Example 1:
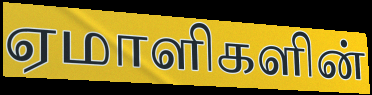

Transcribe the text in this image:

ஏமாளிகளின்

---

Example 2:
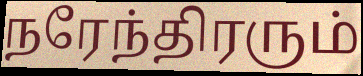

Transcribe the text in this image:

நரேந்திரரும்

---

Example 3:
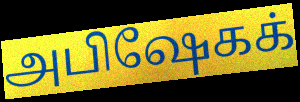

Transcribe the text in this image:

அபிஷேகக்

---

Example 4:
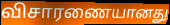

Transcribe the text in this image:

விசாரணையானது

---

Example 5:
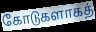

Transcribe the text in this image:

கோடுகளாகத்